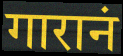
गारानं